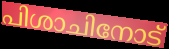
പിശാചിനോട്